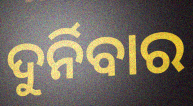
ଦୁର୍ନିବାର